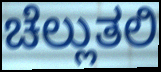
ಚೆಲ್ಲುತಲಿ